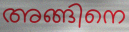
അങ്ങിനെ